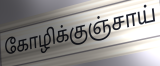
கோழிக்குஞ்சாய்